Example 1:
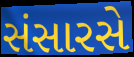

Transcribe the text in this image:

સંસારસે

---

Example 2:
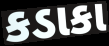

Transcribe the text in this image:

કડાકા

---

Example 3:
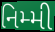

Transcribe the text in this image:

નિમ્મી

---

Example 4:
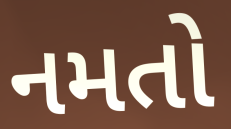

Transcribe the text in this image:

નમતો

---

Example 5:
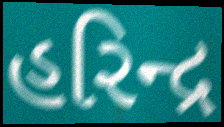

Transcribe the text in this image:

હરિન્દ્ર